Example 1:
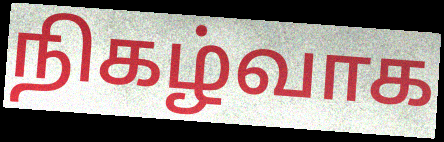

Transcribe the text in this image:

நிகழ்வாக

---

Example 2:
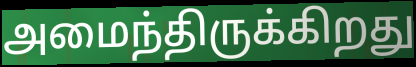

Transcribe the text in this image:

அமைந்திருக்கிறது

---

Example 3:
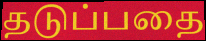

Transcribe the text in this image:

தடுப்பதை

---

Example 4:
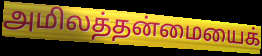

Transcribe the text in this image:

அமிலத்தன்மையைக்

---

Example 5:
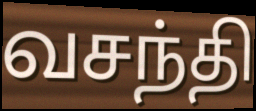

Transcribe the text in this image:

வசந்தி